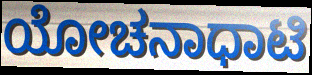
ಯೋಚನಾಧಾಟಿ